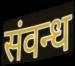
संवन्ध